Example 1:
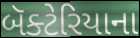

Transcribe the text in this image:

બૅક્ટેરિયાના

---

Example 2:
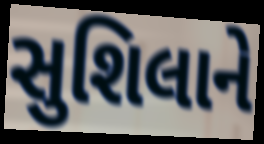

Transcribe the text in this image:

સુશિલાને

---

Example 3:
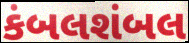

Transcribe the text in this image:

કંબલશંબલ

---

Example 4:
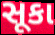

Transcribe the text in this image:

સૂકા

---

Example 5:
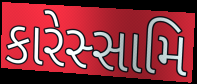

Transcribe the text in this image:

કારેસ્સામિ